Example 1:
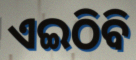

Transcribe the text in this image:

ଏଇଠିବି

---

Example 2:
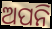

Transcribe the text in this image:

ଅପନି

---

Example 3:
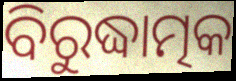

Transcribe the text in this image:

ବିରୁଦ୍ଧାତ୍ମକ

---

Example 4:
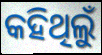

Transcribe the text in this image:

କହିଥିଲୁଁ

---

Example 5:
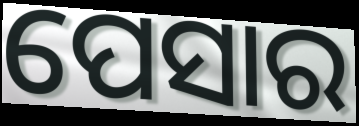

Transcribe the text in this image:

ପେସାର